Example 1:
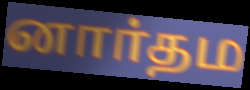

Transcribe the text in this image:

னார்தம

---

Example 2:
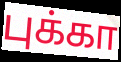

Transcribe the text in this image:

புக்கா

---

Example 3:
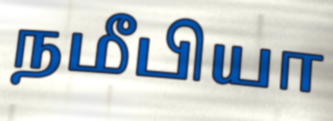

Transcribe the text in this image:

நமீபியா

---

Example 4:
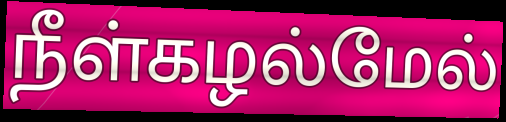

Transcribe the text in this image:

நீள்கழல்மேல்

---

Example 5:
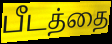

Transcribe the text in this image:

பீடத்தை